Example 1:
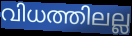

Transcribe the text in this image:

വിധത്തിലല്ല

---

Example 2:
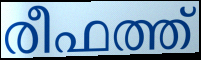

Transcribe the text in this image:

രീഫത്ത്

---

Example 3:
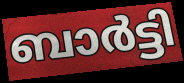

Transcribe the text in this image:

ബാർട്ടി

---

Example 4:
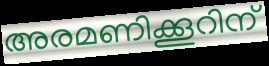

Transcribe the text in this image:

അരമണിക്കൂറിന്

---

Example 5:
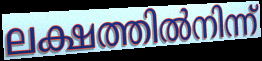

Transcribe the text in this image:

ലക്ഷത്തിൽനിന്ന്